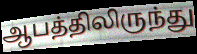
ஆபத்திலிருந்து